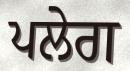
ਪਲੇਗ